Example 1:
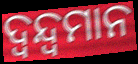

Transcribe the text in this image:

ଦ୍ଵନ୍ଦ୍ଵମାନ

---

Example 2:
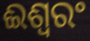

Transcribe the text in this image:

ଈଶ୍ଵରଂ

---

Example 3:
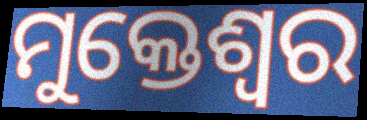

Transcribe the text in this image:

ମୁକ୍ତେଶ୍ଵର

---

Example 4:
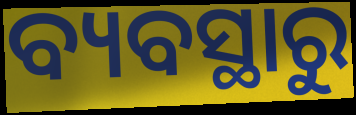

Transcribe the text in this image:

ବ୍ୟବସ୍ଥାରୁ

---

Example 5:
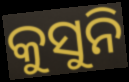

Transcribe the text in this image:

କୁସୁନି